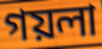
গয়লা